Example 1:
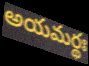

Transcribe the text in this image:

అయమర్థః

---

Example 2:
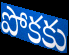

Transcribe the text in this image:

పోకకు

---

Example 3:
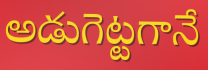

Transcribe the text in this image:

అడుగెట్టగానే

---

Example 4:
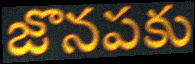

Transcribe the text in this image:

జొనపకు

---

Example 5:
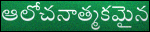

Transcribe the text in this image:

ఆలోచనాత్మకమైన